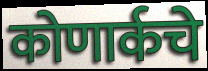
कोणार्कचे